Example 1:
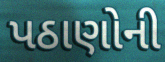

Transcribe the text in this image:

પઠાણોની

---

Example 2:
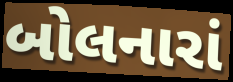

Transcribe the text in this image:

બોલનારાં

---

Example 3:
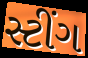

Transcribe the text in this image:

સ્ટીંગ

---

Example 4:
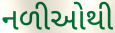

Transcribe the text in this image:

નળીઓથી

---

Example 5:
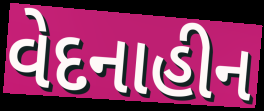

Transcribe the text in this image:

વેદનાહીન